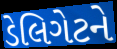
ડેલિગેટને